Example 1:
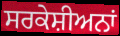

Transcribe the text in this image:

ਸਰਕੇਸ਼ੀਅਨਾਂ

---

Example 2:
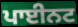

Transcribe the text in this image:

ਪਾਈਨਟ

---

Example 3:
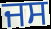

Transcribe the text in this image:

ਜਸ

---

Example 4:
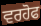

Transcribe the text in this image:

ਵਰਹੋਫ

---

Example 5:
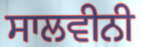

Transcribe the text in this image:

ਸਾਲਵੀਨੀ